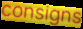
consigns